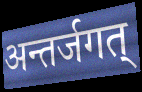
अन्तर्जगत्